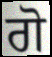
ਗੋ